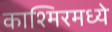
काश्मिरमध्ये